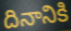
దినానికి